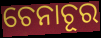
ଚେନାଚୂର